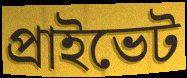
প্রাইভেট